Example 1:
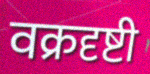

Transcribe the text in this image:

वक्रदृष्टी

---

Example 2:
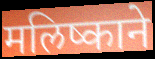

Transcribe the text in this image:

मलिष्काने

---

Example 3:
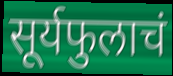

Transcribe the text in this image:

सूर्यफुलाचं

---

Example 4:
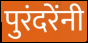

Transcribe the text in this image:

पुरंदरेंनी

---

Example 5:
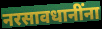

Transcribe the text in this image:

नरसावधानींना